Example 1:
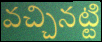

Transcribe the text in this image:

వచ్చినట్టి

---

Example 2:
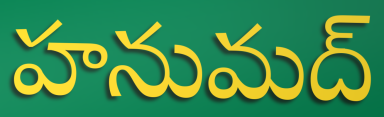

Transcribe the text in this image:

హనుమద్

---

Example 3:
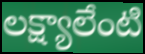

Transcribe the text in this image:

లక్ష్యాలేంటి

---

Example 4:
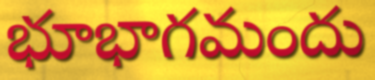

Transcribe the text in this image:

భూభాగమందు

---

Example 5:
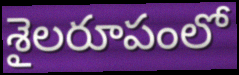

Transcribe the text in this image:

శైలరూపంలో